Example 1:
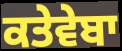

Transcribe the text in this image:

ਕਤੇਵੇਬਾ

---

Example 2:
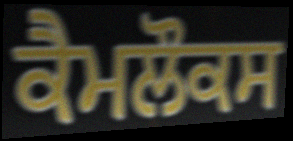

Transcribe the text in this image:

ਕੈਮਲੌਕਸ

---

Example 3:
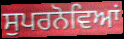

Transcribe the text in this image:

ਸੁਪਰਨੋਵਿਆਂ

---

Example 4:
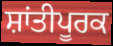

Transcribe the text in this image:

ਸ਼ਾਂਤੀਪੂਰਕ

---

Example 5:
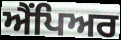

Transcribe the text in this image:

ਐਂਪਿਅਰ